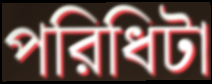
পরিধিটা